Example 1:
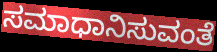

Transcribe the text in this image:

ಸಮಾಧಾನಿಸುವಂತೆ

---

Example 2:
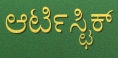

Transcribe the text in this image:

ಆರ್ಟಿಸ್ಟಿಕ್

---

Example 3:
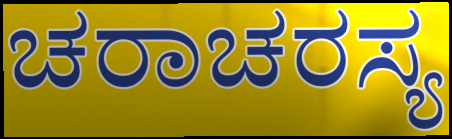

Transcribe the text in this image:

ಚರಾಚರಸ್ಯ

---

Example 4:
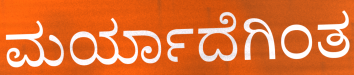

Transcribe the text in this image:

ಮರ್ಯಾದೆಗಿಂತ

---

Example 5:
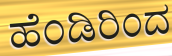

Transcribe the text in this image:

ಹೆಂಡಿರಿಂದ